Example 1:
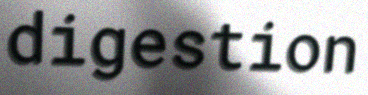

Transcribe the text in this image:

digestion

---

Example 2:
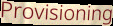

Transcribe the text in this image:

Provisioning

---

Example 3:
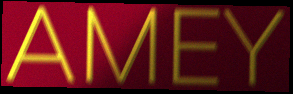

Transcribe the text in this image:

AMEY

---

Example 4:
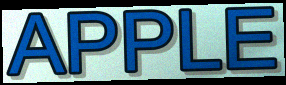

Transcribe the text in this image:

APPLE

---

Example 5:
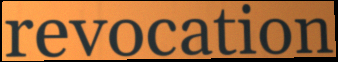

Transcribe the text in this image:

revocation